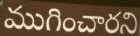
ముగించారని